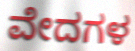
ವೇದಗಳ